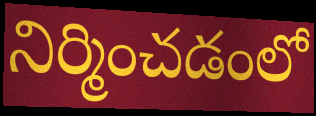
నిర్మించడంలో